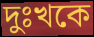
দুঃখকে